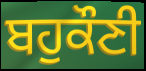
ਬਹੁਕੌਣੀ